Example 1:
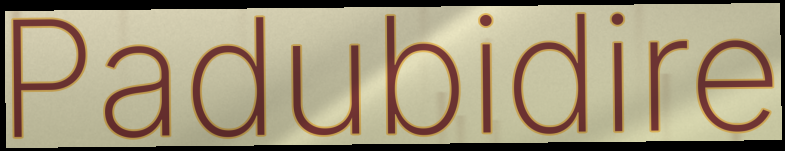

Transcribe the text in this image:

Padubidire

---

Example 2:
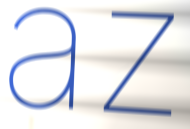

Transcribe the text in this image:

az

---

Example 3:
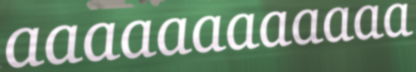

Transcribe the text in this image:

aaaaaaaaaaaa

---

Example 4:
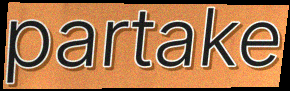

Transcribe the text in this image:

partake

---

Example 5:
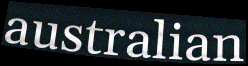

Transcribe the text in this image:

australian